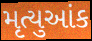
મૃત્યુઆંક